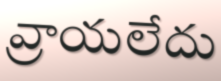
వ్రాయలేదు